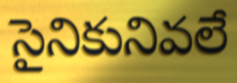
సైనికునివలే